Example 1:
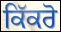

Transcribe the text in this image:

ਕਿੱਕਰੋ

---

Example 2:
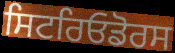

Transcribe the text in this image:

ਸਿਟਰਿਓਡੋਰਸ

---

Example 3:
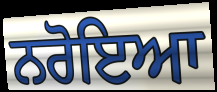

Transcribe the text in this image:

ਨਰੋਇਆ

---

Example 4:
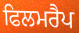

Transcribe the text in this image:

ਫਿਲਮਰੈਪ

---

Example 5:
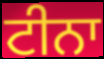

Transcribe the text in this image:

ਟੀਨਾ